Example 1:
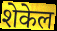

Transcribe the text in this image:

शेकेल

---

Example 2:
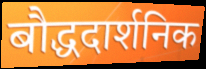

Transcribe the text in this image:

बौद्धदार्शनिक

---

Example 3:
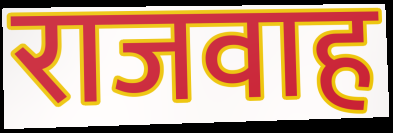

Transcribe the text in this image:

राजवाह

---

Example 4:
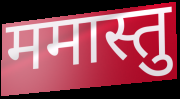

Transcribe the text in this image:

ममास्तु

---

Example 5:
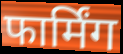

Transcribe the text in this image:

फार्मिंग